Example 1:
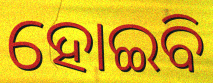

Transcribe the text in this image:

ହୋଇବି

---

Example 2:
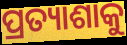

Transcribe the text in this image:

ପ୍ରତ୍ୟାଶାକୁ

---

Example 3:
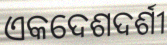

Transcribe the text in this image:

ଏକଦେଶଦର୍ଶୀ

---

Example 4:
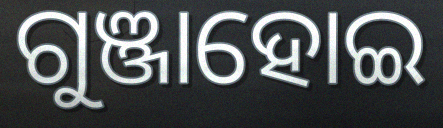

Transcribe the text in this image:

ଗୁଞ୍ଜାହୋଇ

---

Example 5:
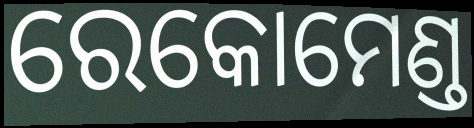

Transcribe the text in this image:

ରେକୋମେଣ୍ଡ